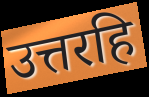
उत्तरहि